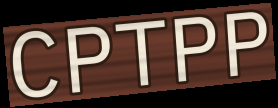
CPTPP